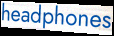
headphones